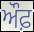
ਔਫ਼